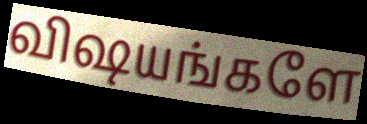
விஷயங்களே